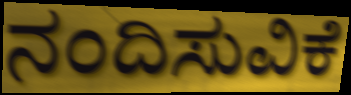
ನಂದಿಸುವಿಕೆ